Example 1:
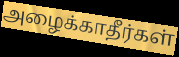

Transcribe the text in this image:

அழைக்காதீர்கள்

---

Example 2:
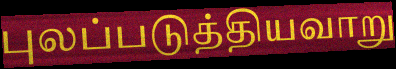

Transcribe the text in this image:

புலப்படுத்தியவாறு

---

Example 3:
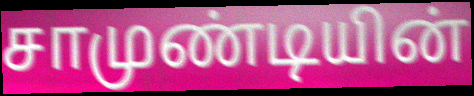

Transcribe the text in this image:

சாமுண்டியின்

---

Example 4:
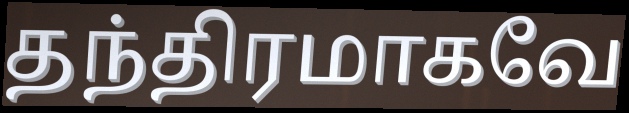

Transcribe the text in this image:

தந்திரமாகவே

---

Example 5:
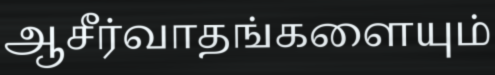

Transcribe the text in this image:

ஆசீர்வாதங்களையும்